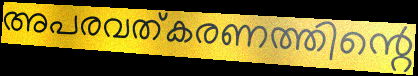
അപരവത്കരണത്തിന്റെ